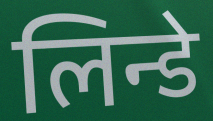
लिन्डे